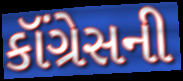
કૉંગ્રેસની